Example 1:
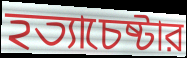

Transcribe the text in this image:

হত্যাচেষ্টার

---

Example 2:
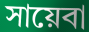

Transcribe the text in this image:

সায়েবা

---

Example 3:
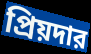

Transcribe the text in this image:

প্রিয়দার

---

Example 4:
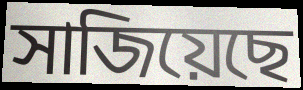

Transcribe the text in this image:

সাজিয়েছে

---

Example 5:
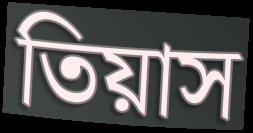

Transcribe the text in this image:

তিয়াস